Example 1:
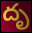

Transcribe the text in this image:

దృ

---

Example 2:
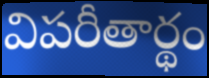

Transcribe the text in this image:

విపరీతార్థం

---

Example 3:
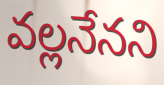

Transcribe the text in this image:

వల్లనేనని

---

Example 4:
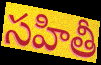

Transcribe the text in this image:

సహితీ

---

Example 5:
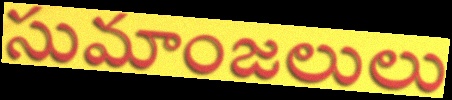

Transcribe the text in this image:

సుమాంజలులు